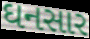
ઘનસાર